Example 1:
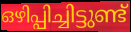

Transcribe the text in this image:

ഒഴിപ്പിച്ചിട്ടുണ്ട്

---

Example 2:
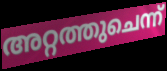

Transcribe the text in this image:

അറ്റത്തുചെന്ന്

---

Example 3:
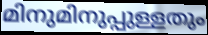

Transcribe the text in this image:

മിനുമിനുപ്പുള്ളതും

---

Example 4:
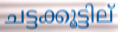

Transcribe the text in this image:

ചട്ടക്കൂട്ടില്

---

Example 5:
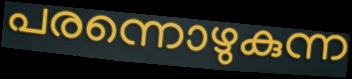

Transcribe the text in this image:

പരന്നൊഴുകുന്ന